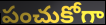
పంచుకోగా